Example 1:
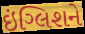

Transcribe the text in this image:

ઇંગ્લિશને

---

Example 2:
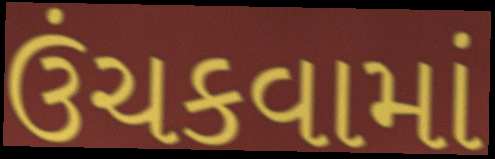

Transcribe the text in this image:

ઉંચકવામાં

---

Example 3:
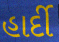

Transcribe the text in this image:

હાર્દી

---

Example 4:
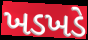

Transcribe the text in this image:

ખડખડે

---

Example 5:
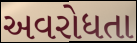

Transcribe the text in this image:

અવરોધતા